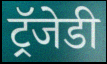
ट्रॅजेडी